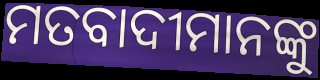
ମତବାଦୀମାନଙ୍କୁ